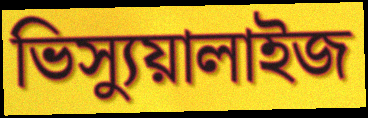
ভিস্যুয়ালাইজ